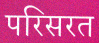
परिसरत